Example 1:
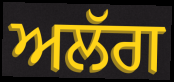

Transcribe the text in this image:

ਅਲੱਗ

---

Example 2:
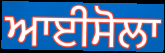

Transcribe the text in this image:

ਆਈਸੋਲਾ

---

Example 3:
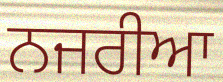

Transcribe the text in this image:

ਨਜਰੀਆ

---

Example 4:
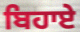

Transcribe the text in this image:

ਬਿਹਾਏ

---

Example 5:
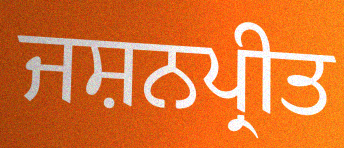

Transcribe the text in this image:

ਜਸ਼ਨਪ੍ਰੀਤ